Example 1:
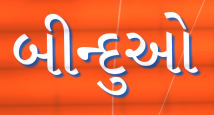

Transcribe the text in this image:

બીન્દુઓ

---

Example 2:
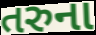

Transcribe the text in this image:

તરુના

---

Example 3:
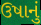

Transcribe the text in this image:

ઉષાનું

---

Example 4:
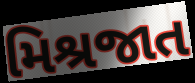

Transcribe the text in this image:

મિશ્રજાત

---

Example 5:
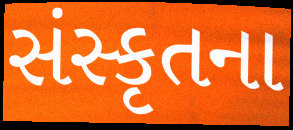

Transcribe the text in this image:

સંસ્‍કૃતના